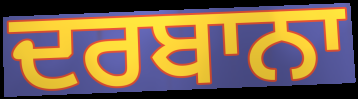
ਦਰਬਾਨਾ